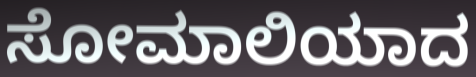
ಸೋಮಾಲಿಯಾದ